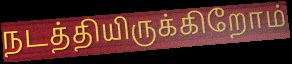
நடத்தியிருக்கிறோம்